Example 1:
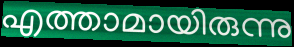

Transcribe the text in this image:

എത്താമായിരുന്നു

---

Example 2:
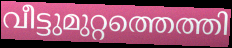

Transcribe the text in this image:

വീട്ടുമുറ്റത്തെത്തി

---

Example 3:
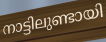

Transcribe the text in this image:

നാട്ടിലുണ്ടായി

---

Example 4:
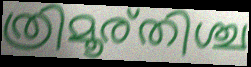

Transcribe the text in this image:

ത്രിമൂര്തിശ്ച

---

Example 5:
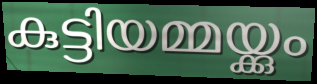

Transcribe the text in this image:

കുട്ടിയമ്മയ്ക്കും